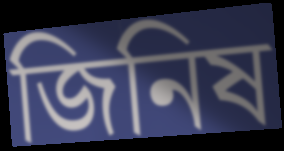
জিনিষ